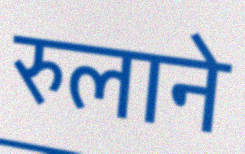
रुलाने